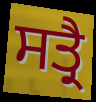
ਸਤ੍ਰੈ